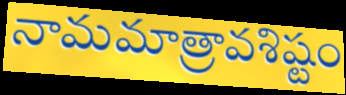
నామమాత్రావశిష్టం